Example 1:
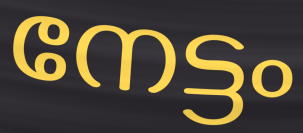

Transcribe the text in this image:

നേട്ടം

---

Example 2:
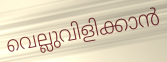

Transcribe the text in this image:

വെല്ലുവിളിക്കാൻ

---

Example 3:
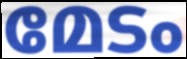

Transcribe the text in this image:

മേടം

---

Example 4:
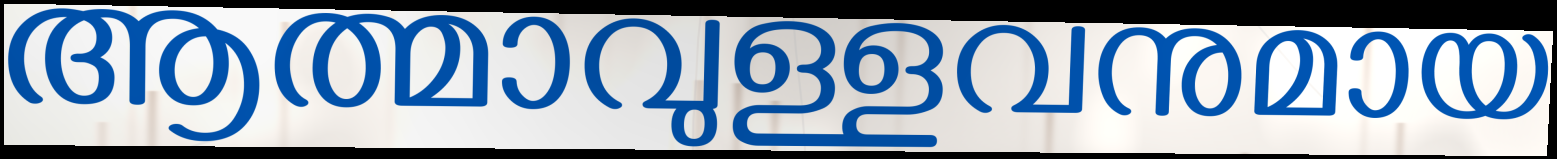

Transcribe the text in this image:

ആത്മാവുള്ളവനുമായ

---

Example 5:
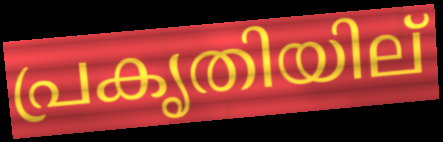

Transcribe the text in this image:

പ്രകൃതിയില്